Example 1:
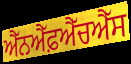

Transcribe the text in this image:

ਐੱਨਐੱਫ਼ਐੱਚਐੱਸ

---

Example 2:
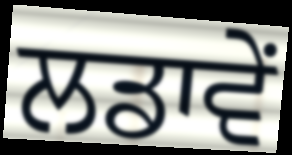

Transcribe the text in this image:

ਲਡਾਵੇਂ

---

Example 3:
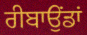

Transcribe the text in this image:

ਰੀਬਾਉਂਡਾਂ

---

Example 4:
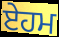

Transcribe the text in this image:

ਏਹਮ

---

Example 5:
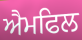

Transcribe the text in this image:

ਐਮਫਿਲ